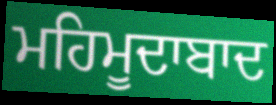
ਮਹਿਮੂਦਾਬਾਦ